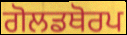
ਗੋਲਡਥੋਰਪ